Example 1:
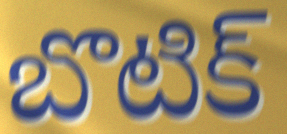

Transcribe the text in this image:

బొటిక్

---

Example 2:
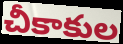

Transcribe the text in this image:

చీకాకుల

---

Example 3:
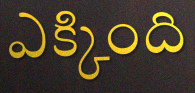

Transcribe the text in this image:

ఎక్కింది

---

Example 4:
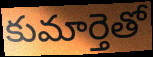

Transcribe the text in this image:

కుమార్తెతో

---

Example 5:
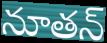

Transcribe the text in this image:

నూతన్